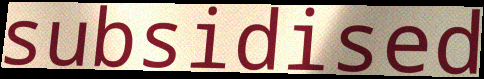
subsidised